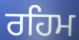
ਰਹਿਮ